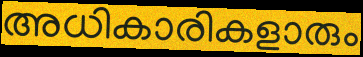
അധികാരികളാരും